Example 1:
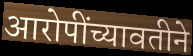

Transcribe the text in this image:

आरोपींच्यावतीने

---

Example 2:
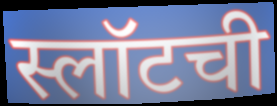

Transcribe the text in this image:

स्लॉटची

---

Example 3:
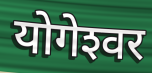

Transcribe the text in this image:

योगेश्‍वर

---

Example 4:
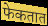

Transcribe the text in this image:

फेकतात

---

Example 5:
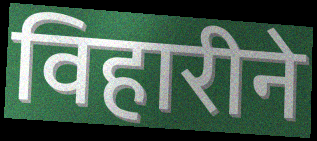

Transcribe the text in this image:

विहारीने